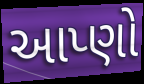
આપ્ણો